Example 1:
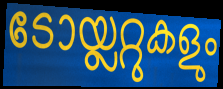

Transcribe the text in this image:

ടോയ്ലറ്റുകളും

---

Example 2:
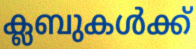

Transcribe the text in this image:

ക്ലബുകൾക്ക്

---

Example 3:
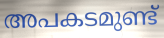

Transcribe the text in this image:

അപകടമുണ്ട്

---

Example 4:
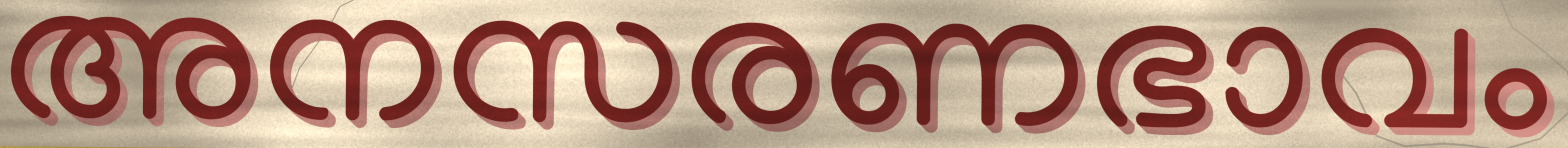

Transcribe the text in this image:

അനസരണഭാവം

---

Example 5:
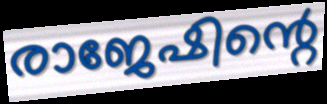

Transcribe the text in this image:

രാജേഷിന്റെ